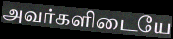
அவர்களிடையே